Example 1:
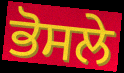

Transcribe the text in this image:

ਭੋਸਲੇ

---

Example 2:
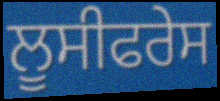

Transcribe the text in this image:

ਲੂਸੀਫਰੇਸ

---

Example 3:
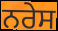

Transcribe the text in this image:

ਨਰੇਸ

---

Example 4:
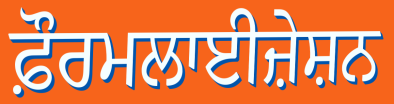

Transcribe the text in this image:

ਫ਼ੌਰਮਲਾਈਜ਼ੇਸ਼ਨ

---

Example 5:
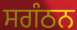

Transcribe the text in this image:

ਸਗੰਠਨ